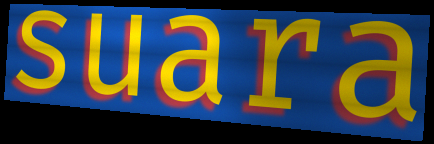
suara